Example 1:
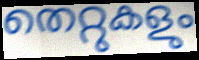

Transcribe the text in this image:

തെറ്റുകളും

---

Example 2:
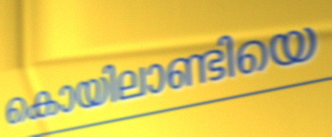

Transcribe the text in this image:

കൊയിലാണ്ടിയെ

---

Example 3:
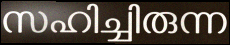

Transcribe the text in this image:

സഹിച്ചിരുന്ന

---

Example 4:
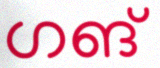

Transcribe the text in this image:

ഗങ്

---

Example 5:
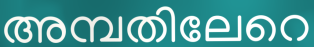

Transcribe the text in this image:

അമ്പതിലേറെ